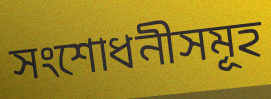
সংশোধনীসমূহ